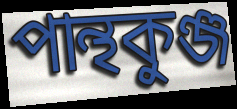
পান্থকুঞ্জ